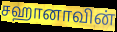
சஹானாவின்